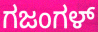
ಗಜಂಗಳ್